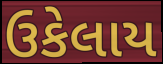
ઉકેલાય